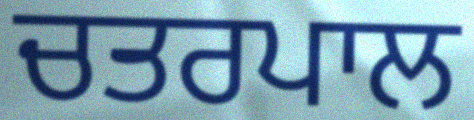
ਚਤਰਪਾਲ